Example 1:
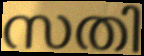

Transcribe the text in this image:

സതി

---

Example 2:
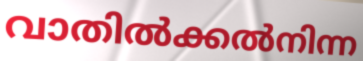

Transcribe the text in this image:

വാതിൽക്കൽനിന്ന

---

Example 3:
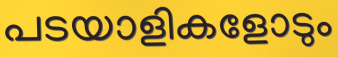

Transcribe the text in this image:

പടയാളികളോടും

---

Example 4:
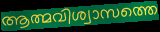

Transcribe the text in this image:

ആത്മവിശ്വാസത്തെ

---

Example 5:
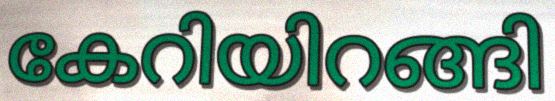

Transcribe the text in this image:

കേറിയിറങ്ങി